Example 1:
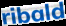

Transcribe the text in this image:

ribald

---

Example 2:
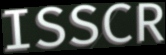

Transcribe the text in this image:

ISSCR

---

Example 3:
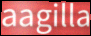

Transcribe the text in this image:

aagilla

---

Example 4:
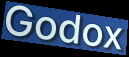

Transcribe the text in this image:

Godox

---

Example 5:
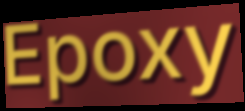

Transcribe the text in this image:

Epoxy